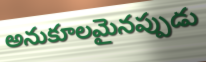
అనుకూలమైనప్పుడు